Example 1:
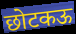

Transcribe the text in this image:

छोटकऊ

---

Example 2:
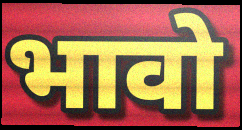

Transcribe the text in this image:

भावो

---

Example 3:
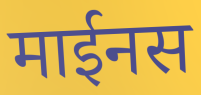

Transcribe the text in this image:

माईनस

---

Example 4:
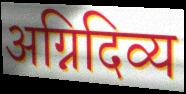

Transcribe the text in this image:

अग्निदिव्य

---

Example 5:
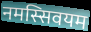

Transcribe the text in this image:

नमस्सिवयम